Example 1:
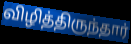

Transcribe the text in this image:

விழித்திருந்தார்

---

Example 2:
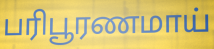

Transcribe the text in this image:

பரிபூரணமாய்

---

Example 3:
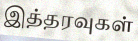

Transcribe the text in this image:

இத்தரவுகள்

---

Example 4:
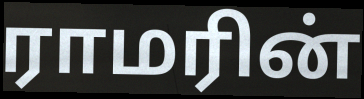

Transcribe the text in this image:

ராமரின்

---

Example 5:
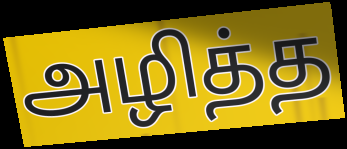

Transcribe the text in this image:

அழித்த